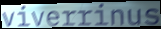
viverrinus